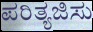
ಪರಿತ್ಯಜಿಸು